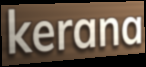
kerana